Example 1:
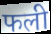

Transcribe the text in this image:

फली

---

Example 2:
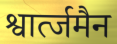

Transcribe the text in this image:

श्वार्त्जमैन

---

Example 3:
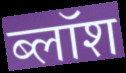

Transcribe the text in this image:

ब्लॉश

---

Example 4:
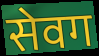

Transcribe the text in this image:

सेवग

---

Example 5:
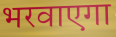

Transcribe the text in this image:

भरवाएगा